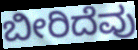
ಬೀರಿದೆವು